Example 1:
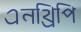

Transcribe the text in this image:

এনথ্রিপি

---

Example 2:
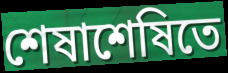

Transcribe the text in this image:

শেষাশেষিতে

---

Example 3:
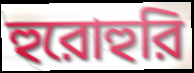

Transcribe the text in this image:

হুরোহুরি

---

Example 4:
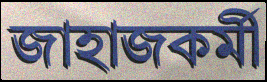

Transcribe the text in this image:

জাহাজকর্মী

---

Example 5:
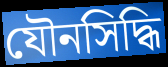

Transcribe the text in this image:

যৌনসিদ্ধি